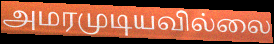
அமரமுடியவில்லை